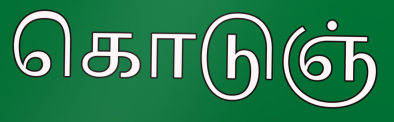
கொடுஞ்